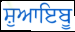
ਸ਼ੁਆਇਬੂ